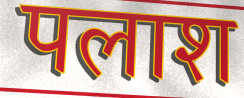
पलाश